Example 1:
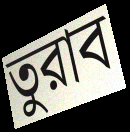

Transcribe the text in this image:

তুরাব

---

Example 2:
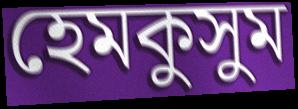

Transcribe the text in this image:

হেমকুসুম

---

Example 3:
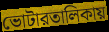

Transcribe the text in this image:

ভোটারতালিকায়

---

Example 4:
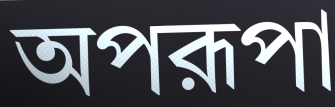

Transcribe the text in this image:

অপরূপা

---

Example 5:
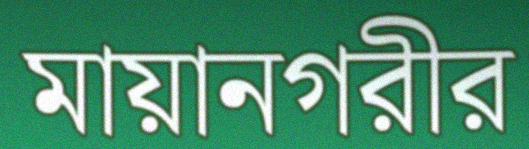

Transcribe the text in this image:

মায়ানগরীর